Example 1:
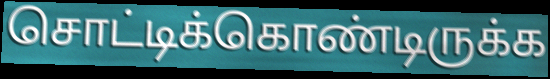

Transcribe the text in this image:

சொட்டிக்கொண்டிருக்க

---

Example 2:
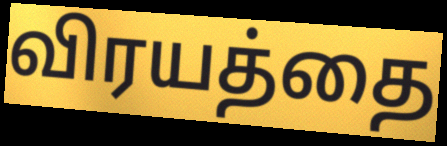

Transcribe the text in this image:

விரயத்தை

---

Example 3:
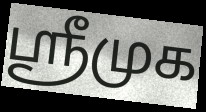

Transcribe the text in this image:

ஸ்ரீமுக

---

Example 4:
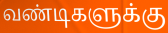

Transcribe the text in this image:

வண்டிகளுக்கு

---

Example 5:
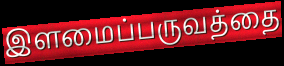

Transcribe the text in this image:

இளமைப்பருவத்தை